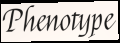
Phenotype